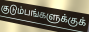
குடும்பங்களுக்குக்